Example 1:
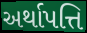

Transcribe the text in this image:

અર્થાપત્તિ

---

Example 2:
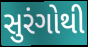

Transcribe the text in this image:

સુરંગોથી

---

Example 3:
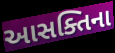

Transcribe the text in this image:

આસક્તિના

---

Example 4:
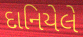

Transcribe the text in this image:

દાનિયેલે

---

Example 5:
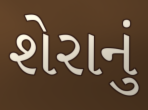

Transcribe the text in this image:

શેરાનું